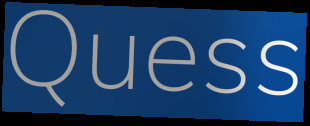
Quess